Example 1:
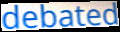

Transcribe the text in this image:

debated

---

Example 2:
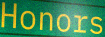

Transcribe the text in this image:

Honors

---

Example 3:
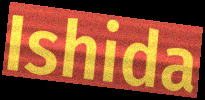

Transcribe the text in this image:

Ishida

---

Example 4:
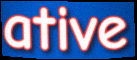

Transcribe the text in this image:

ative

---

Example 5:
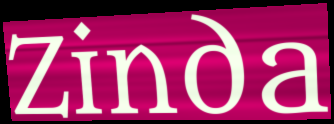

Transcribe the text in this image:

Zinda